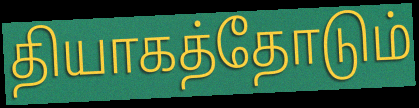
தியாகத்தோடும்